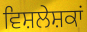
ਵਿਸ਼ਲੇਸ਼ਕਾਂ